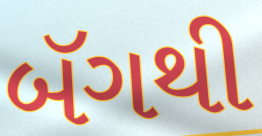
બૅગથી